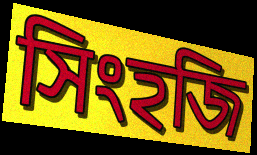
সিংহজি